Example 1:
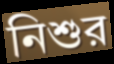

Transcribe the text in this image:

নিশুর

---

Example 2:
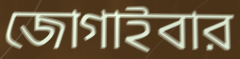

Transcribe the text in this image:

জোগাইবার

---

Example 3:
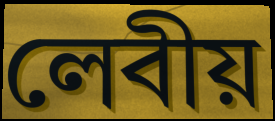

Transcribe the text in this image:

লেবীয়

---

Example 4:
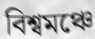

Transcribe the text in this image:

বিশ্বমঞ্চে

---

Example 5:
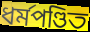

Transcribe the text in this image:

ধর্মপণ্ডিত